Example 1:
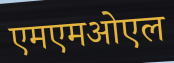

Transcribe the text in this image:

एमएमओएल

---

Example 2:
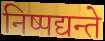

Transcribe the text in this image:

निष्पद्यन्ते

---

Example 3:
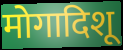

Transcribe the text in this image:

मोगादिशू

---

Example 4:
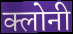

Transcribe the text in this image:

क्लोनी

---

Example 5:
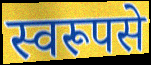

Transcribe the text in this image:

स्वरूपसे